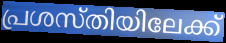
പ്രശസ്തിയിലേക്ക്